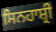
ਸਿਨਹਾਸ਼੍ਰੀ